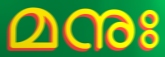
മനുഃ